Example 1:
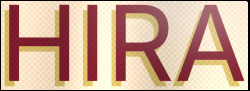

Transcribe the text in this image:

HIRA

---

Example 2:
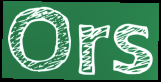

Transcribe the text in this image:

Ors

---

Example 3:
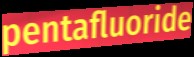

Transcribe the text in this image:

pentafluoride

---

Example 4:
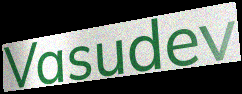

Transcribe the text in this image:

Vasudev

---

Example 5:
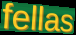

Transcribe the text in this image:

fellas